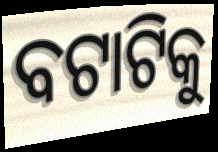
ବଟାଟିକୁ